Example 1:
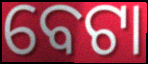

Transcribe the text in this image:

ବେଟା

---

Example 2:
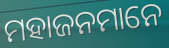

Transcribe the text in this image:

ମହାଜନମାନେ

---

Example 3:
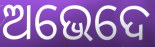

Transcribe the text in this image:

ଅଭେଦେ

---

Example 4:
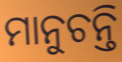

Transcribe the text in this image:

ମାନୁଚନ୍ତି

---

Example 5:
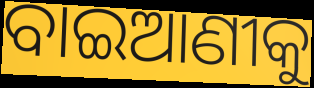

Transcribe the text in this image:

ବାଇଆଣୀକୁ